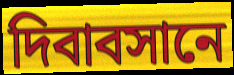
দিবাবসানে